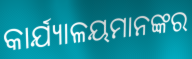
କାର୍ଯ୍ୟାଳୟମାନଙ୍କର